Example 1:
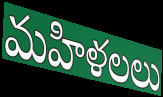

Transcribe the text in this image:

మహిళలలు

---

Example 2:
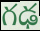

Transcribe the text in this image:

గఢ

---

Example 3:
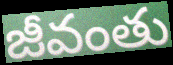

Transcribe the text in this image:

జీవంతు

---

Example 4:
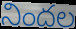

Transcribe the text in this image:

నిందల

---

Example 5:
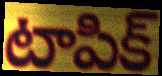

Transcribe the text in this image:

టాపిక్